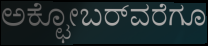
ಅಕ್ಟೋಬರ್‌ವರೆಗೂ